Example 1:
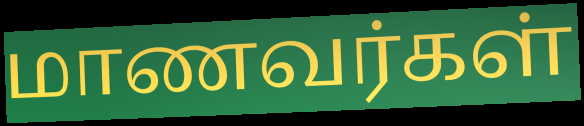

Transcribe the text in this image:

மாணவர்கள்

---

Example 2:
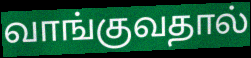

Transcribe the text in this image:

வாங்குவதால்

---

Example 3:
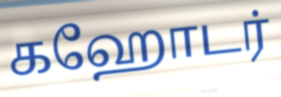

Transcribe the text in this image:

கஹோடர்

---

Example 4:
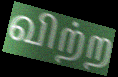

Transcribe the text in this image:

விற்ற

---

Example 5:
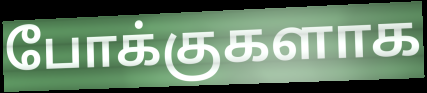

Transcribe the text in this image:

போக்குகளாக